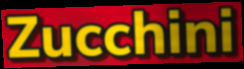
Zucchini